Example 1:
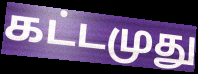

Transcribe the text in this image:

கட்டமுது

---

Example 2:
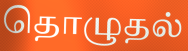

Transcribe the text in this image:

தொழுதல்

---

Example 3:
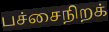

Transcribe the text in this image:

பச்சைநிறக்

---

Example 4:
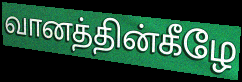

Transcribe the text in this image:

வானத்தின்கீழே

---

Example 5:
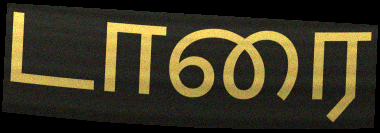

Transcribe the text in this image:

டாரை